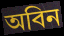
অবিন